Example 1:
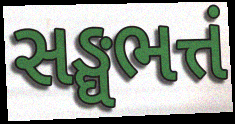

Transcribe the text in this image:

સઙ્ઘભત્તં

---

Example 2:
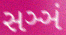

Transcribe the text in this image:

સઞ્ઞં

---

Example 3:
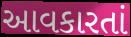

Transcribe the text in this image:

આવકારતાં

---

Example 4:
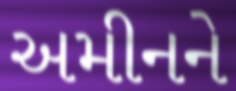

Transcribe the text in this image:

અમીનને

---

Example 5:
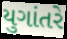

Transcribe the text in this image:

યુગાંતરે